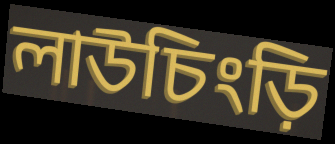
লাউচিংড়ি